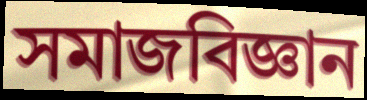
সমাজবিজ্ঞান